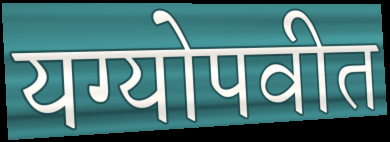
यग्योपवीत